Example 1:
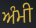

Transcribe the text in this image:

ਅੰਮੀ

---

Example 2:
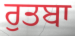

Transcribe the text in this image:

ਰੁਤਬਾ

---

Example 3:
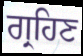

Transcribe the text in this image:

ਗ੍ਰਹਿਣ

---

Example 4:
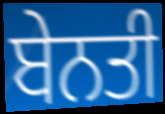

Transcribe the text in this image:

ਬੇਨਤੀ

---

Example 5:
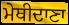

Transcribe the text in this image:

ਮੇਥੀਦਾਣਾ